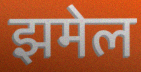
झमेल